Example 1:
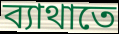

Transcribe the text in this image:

ব্যাথাতে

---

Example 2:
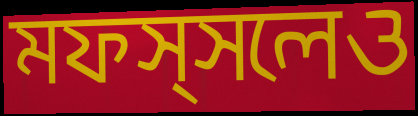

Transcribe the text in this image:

মফস্‌সলেও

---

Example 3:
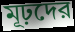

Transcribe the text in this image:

মূঢ়দের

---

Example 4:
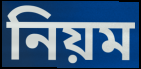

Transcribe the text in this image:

নিয়ম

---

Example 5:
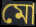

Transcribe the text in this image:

মো